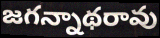
జగన్నాథరావు